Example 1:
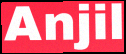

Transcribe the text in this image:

Anjil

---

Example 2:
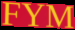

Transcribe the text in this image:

FYM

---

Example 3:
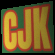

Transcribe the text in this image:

CJK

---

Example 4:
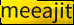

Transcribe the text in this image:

meeajit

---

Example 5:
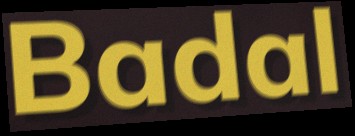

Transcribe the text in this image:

Badal